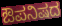
ಔಪನಿಷದ